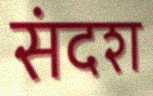
संदश